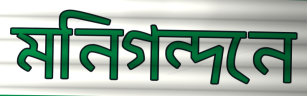
মনিগন্দনে